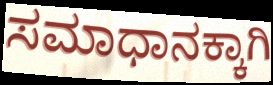
ಸಮಾಧಾನಕ್ಕಾಗಿ